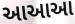
આઆઆ